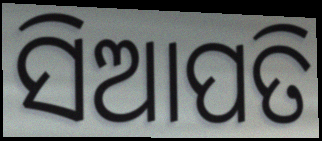
ସିଆପତି